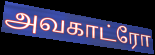
அவகாட்ரோ